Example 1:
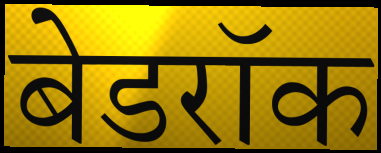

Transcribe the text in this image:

बेडरॉक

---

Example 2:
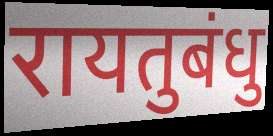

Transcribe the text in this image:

रायतुबंधु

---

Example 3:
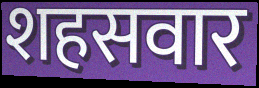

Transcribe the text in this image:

शहसवार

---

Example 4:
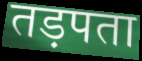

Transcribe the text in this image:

तड़पता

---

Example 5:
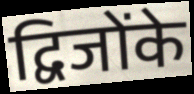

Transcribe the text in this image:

द्विजोंके